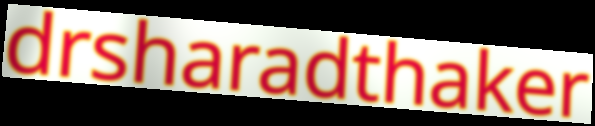
drsharadthaker